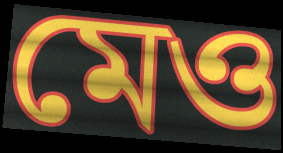
মেও